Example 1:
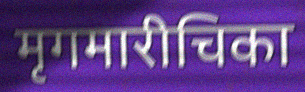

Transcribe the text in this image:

मृगमारीचिका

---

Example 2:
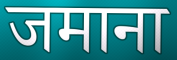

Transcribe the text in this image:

जमाना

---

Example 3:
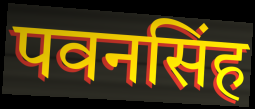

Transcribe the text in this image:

पवनसिंह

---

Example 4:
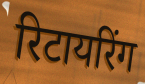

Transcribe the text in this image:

रिटायरिंग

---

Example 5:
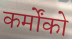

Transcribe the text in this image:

कर्मोंको